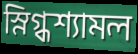
স্নিগ্ধশ্যামল